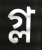
গ্ল